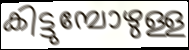
കിട്ടുമ്പോഴുള്ള